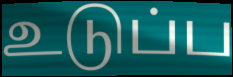
உடுப்ப